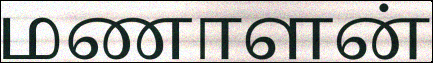
மணாளன்